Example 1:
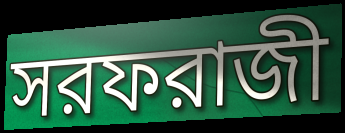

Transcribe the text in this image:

সরফরাজী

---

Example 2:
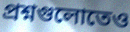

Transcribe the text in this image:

প্রশ্নগুলোতেও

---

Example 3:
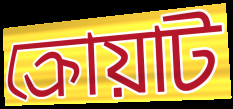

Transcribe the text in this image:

ক্রোয়াট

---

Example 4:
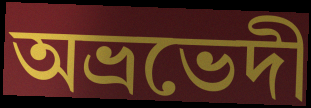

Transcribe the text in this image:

অভ্রভেদী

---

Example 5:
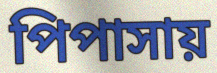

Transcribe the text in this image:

পিপাসায়